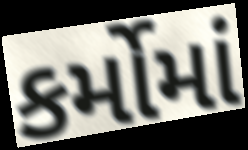
કર્મોમાં